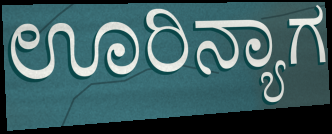
ಊರಿನ್ಯಾಗ